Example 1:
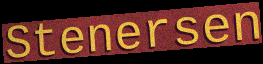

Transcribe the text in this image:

Stenersen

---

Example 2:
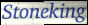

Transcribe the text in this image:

Stoneking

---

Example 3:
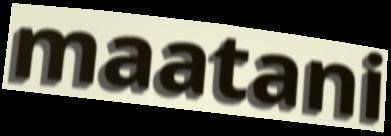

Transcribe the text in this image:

maatani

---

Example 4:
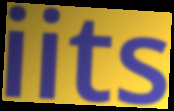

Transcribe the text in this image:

iits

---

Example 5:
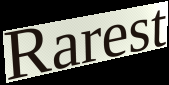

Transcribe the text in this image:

Rarest